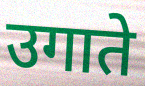
उगाते